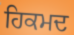
ਹਿਕਮਦ